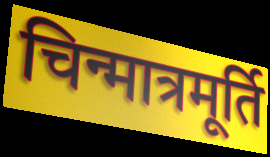
चिन्मात्रमूर्ति